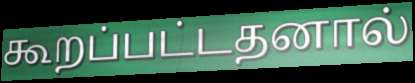
கூறப்பட்டதனால்